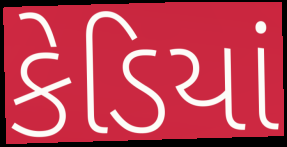
કેડિયાં